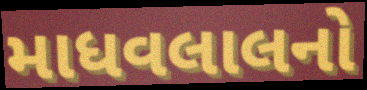
માધવલાલનો